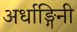
अर्धाङ्गिनी